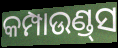
କମ୍ପାଉଣ୍ଡ୍‌ସ